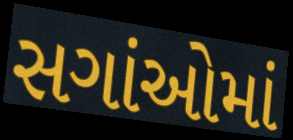
સગાંઓમાં